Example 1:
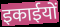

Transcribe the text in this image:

इकाईयों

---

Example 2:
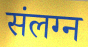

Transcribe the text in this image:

संलग्न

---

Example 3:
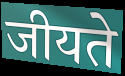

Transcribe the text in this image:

जीयते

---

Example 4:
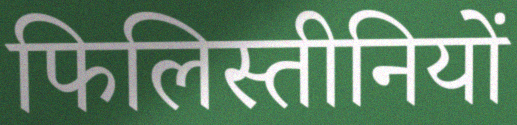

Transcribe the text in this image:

फिलिस्तीनियों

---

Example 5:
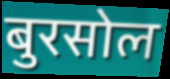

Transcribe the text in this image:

बुरसोल